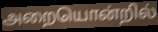
அறையொன்றில்